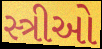
સ્‍ત્રીઓ